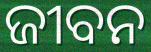
ଜୀବନ